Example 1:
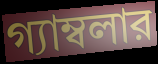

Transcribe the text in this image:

গ্যাম্বলার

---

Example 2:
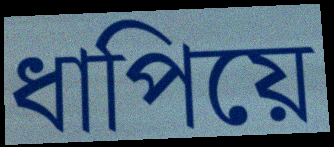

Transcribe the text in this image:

ধাপিয়ে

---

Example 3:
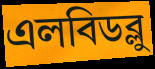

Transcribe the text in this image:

এলবিডব্লু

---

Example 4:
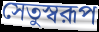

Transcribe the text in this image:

সেতুস্বরূপ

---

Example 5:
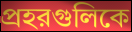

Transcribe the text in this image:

প্রহরগুলিকে